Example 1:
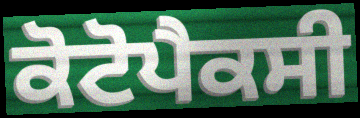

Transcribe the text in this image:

ਕੋਟੋਪੈਕਸੀ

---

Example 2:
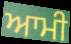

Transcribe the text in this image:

ਆਮੀ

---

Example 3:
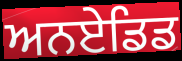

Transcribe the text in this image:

ਅਨਏਡਿਡ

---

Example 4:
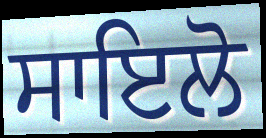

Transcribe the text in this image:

ਸਾਇਲੋ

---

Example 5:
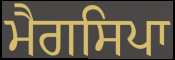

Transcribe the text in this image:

ਮੈਗਸਿਪਾ